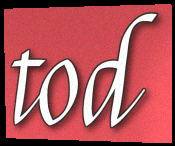
tod